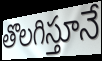
తొలగిస్తూనే